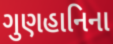
ગુણહાનિના